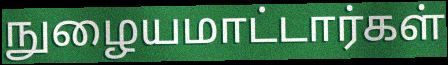
நுழையமாட்டார்கள்